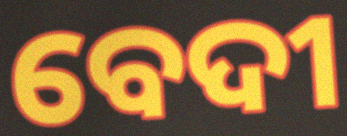
ବେଦୀ